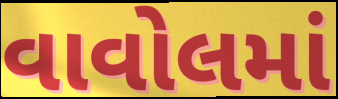
વાવોલમાં